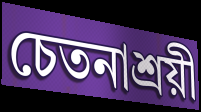
চেতনাশ্রয়ী